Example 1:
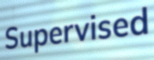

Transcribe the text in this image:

Supervised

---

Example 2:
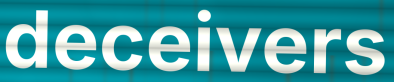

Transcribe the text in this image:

deceivers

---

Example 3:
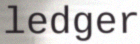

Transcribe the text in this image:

ledger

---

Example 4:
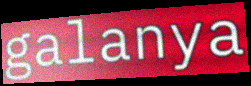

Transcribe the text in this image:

galanya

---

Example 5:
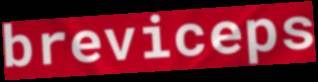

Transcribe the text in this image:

breviceps